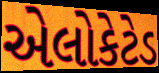
એલોકેટેડ